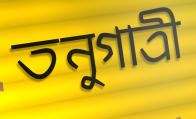
তনুগাত্রী